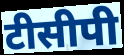
टीसीपी